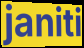
janiti